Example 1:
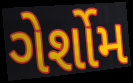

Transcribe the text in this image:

ગેર્શોમ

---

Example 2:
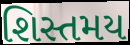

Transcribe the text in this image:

શિસ્તમય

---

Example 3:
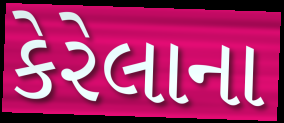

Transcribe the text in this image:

કેરેલાના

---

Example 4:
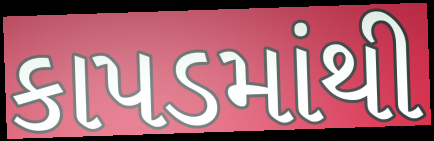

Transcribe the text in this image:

કાપડમાંથી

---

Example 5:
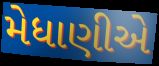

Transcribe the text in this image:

મેધાણીએ